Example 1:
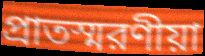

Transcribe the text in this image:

প্রাতস্মরণীয়া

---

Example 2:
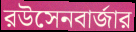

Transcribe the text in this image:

রউসেনবার্জার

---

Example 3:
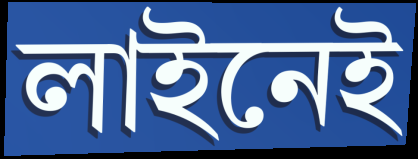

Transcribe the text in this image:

লাইনেই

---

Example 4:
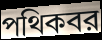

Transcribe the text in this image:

পথিকবর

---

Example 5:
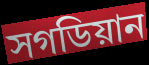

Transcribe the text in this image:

সগডিয়ান